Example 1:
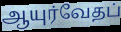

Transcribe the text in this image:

ஆயுர்வேதப்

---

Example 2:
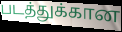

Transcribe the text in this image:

படத்துக்கான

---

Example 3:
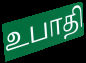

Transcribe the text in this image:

உபாதி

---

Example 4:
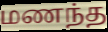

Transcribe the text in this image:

மணந்த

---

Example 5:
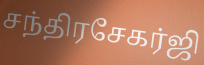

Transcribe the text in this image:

சந்திரசேகர்ஜி